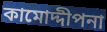
কামোদ্দীপনা